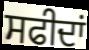
ਸਫੀਦਾਂ